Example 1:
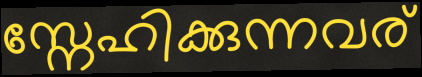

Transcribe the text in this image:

സ്നേഹിക്കുന്നവര്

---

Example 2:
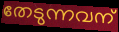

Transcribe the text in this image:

തേടുന്നവന്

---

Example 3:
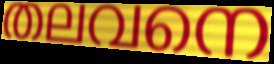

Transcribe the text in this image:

തലവനെ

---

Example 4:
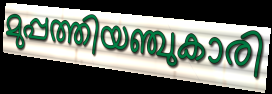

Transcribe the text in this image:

മുപ്പത്തിയഞ്ചുകാരി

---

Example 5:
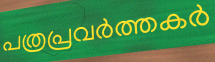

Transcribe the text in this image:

പത്രപ്രവർത്തകർ